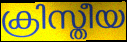
ക്രിസ്തീയ